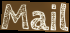
Mail